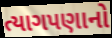
ત્યાગપણાનો